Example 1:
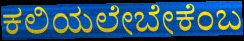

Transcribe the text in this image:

ಕಲಿಯಲೇಬೇಕೆಂಬ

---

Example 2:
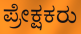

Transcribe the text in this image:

ಪ್ರೇಕ್ಷಕರು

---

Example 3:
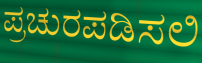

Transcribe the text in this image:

ಪ್ರಚುರಪಡಿಸಲಿ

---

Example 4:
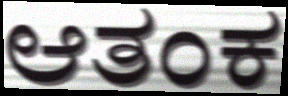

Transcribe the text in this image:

ಆತಂಕ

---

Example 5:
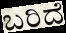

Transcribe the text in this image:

ಬರಿದೆ